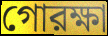
গোরক্ষা